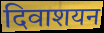
दिवाशयन